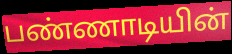
பண்ணாடியின்